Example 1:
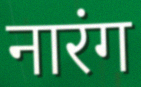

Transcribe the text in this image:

नारंग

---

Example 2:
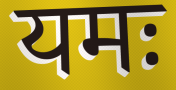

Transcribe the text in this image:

यमः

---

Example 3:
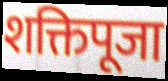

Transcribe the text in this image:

शक्तिपूजा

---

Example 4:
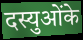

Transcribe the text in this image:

दस्युओंके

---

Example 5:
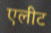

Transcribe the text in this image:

एलीट